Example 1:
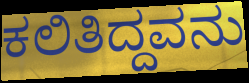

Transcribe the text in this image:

ಕಲಿತಿದ್ದವನು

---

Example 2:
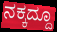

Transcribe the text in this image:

ನಕ್ಕದ್ದೂ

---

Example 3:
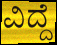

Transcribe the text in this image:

ವಿದ್ದೆ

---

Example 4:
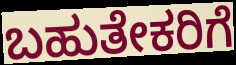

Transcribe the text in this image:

ಬಹುತೇಕರಿಗೆ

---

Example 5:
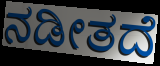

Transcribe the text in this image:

ನಡೀತದೆ